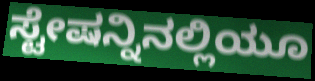
ಸ್ಟೇಷನ್ನಿನಲ್ಲಿಯೂ